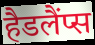
हैडलैंप्स